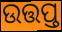
ଉତ୍ତପ୍ତ